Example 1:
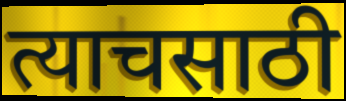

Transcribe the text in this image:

त्याचसाठी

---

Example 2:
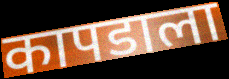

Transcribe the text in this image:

कापडाला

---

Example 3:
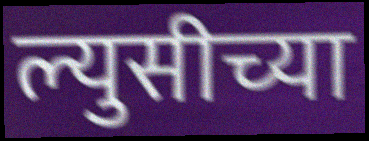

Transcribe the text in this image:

ल्युसीच्या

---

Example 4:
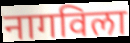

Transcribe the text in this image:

नागविला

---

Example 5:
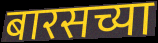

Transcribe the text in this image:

बारसच्या